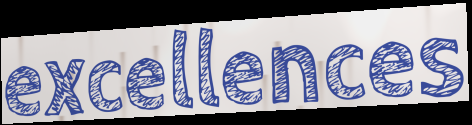
excellences